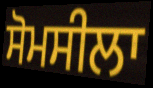
ਸੋਮਸੀਲਾ